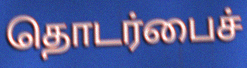
தொடர்பைச்